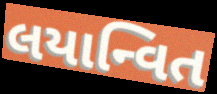
લયાન્વિત